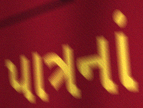
પાત્રનાં